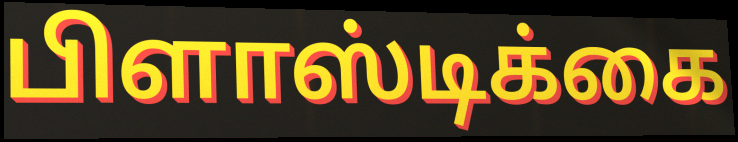
பிளாஸ்டிக்கை